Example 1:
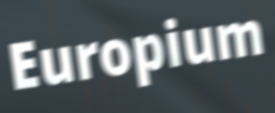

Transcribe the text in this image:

Europium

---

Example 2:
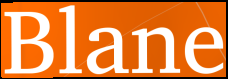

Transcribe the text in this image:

Blane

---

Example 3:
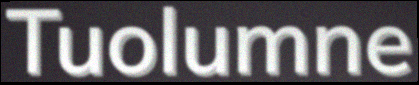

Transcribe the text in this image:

Tuolumne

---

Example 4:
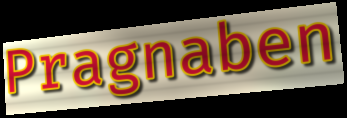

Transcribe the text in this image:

Pragnaben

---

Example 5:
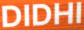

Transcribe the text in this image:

DIDHI